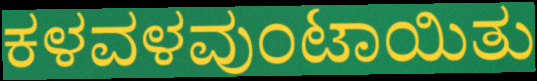
ಕಳವಳವುಂಟಾಯಿತು